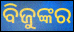
ବିଜୁଙ୍କର